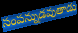
సంపన్నుడవుతాడు